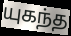
யுகந்த